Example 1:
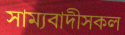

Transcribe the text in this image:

সাম্যবাদীসকল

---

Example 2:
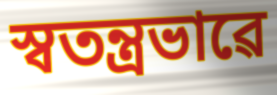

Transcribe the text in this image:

স্বতন্ত্ৰভাৱে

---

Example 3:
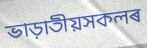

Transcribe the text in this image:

ভাড়াতীয়সকলৰ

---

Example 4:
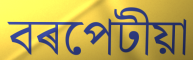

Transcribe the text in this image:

বৰপেটীয়া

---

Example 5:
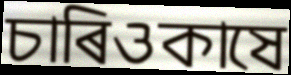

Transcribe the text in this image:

চাৰিওকাষে